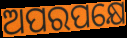
ଅପରପକ୍ଷେ